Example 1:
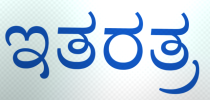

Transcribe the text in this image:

ಇತರತ್ರ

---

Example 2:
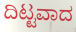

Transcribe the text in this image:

ದಿಟ್ಟವಾದ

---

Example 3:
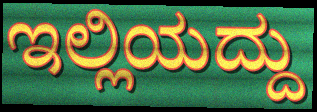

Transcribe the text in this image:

ಇಲ್ಲಿಯದ್ದು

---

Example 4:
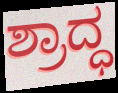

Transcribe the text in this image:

ಶ್ರಾದ್ಧ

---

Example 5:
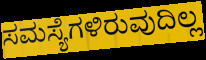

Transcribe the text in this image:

ಸಮಸ್ಯೆಗಳಿರುವುದಿಲ್ಲ